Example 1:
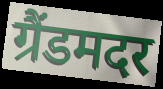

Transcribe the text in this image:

ग्रैंडमदर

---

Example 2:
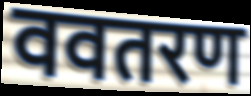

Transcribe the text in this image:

ववतरण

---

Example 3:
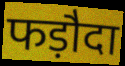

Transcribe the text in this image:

फड़ौदा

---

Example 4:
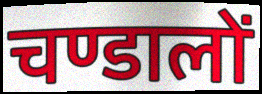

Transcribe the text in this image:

चण्डालों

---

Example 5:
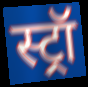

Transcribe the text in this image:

स्ट्रॉ